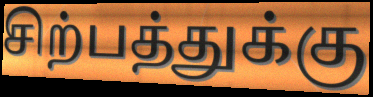
சிற்பத்துக்கு